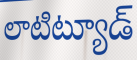
లాటిట్యూడ్